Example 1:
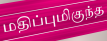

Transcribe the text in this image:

மதிப்புமிகுந்த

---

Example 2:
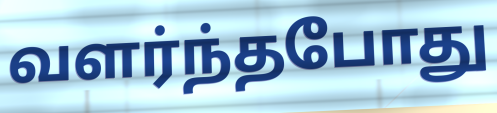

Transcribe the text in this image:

வளர்ந்தபோது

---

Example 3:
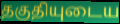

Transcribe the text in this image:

தகுதியுடைய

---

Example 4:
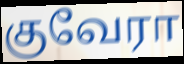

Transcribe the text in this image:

குவேரா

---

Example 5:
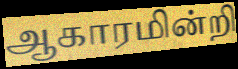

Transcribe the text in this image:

ஆகாரமின்றி